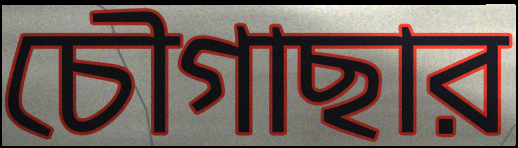
চৌগাছার